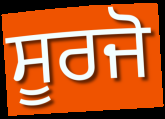
ਸੂਰਜੋ